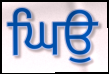
ਘਿਉ